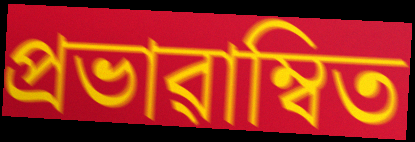
প্ৰভাৱাম্বিত